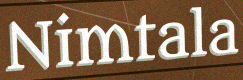
Nimtala